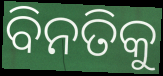
ବିନତିକୁ